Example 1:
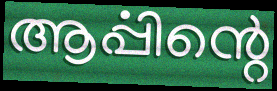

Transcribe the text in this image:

ആൎപ്പിന്റെ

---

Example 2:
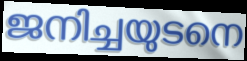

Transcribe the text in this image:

ജനിച്ചയുടനെ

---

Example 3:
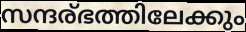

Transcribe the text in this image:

സന്ദര്ഭത്തിലേക്കും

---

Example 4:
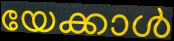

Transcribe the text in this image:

യേക്കാൾ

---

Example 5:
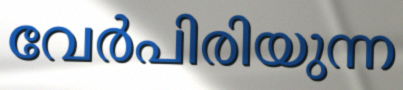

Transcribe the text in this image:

വേർപിരിയുന്ന